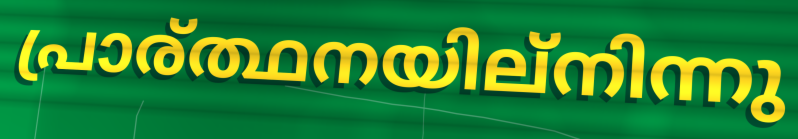
പ്രാര്ത്ഥനയില്നിന്നു